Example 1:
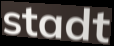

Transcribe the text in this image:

stadt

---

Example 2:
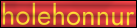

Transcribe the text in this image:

holehonnur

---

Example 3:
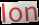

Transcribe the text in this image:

Ion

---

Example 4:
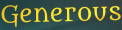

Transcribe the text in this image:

Generous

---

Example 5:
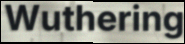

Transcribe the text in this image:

Wuthering